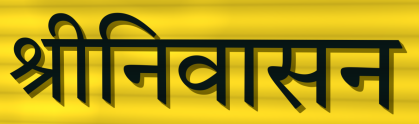
श्रीनिवासन